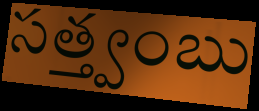
సత్త్వంబు